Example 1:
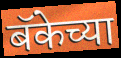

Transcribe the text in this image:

बॅकेच्या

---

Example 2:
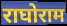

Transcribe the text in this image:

राघोराम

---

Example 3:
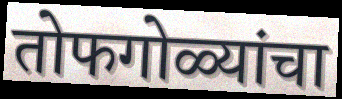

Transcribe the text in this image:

तोफगोळ्यांचा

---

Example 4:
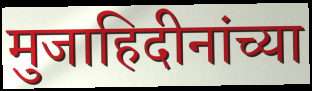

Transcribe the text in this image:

मुजाहिदीनांच्या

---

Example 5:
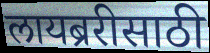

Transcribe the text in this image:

लायब्ररीसाठी